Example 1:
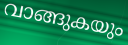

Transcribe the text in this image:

വാങ്ങുകയും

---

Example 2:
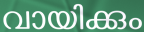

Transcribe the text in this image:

വായിക്കും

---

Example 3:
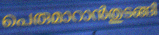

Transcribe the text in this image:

പെരുമാറാൻതുടങ്ങി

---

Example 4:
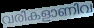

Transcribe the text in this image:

വരികളാണിവ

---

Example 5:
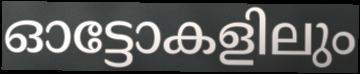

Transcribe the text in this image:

ഓട്ടോകളിലും